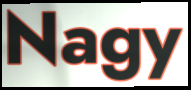
Nagy